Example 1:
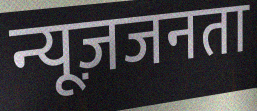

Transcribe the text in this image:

न्यूज़जनता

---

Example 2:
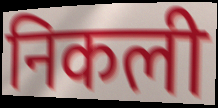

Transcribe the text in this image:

निकली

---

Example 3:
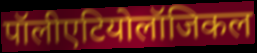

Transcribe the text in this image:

पॉलीएटियोलॉजिकल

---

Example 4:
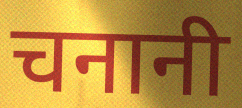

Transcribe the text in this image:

चनानी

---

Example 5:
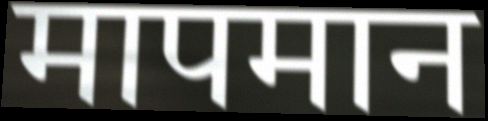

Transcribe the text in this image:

मापमान